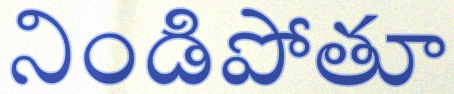
నిండిపోతూ